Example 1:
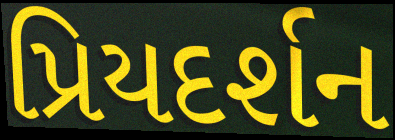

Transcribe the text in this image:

પ્રિયદર્શન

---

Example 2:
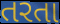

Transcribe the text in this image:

તરતા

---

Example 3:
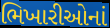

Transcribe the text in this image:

ભિખારીઓનાં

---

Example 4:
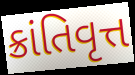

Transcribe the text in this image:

ક્રાંતિવૃત્ત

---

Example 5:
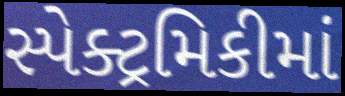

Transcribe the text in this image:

સ્પેક્ટ્રમિકીમાં